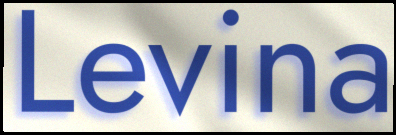
Levina